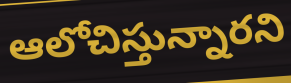
ఆలోచిస్తున్నారని